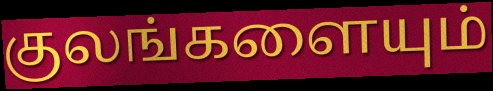
குலங்களையும்